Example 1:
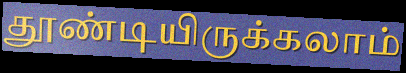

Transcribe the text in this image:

தூண்டியிருக்கலாம்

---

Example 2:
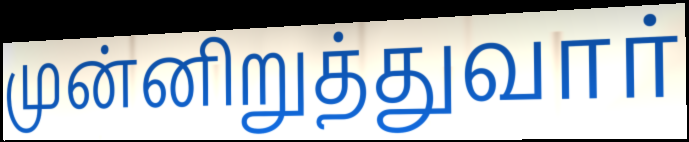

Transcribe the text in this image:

முன்னிறுத்துவார்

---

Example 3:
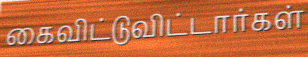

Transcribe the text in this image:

கைவிட்டுவிட்டார்கள்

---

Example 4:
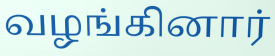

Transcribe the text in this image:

வழங்கினார்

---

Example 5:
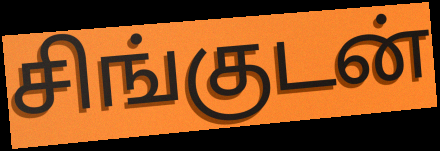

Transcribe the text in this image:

சிங்குடன்